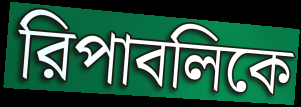
রিপাবলিকে